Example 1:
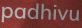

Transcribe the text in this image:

padhivu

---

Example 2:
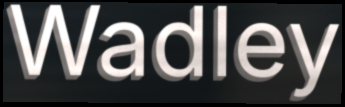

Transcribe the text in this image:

Wadley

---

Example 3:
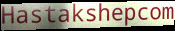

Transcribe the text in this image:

Hastakshepcom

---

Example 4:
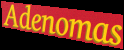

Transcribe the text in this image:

Adenomas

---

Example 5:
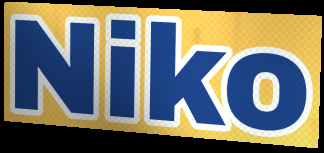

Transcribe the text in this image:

Niko